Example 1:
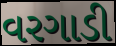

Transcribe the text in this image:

વરગાડી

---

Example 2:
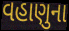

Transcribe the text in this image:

વહાણુના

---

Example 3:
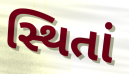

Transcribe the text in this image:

સ્થિતાં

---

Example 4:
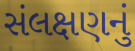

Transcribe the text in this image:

સંલક્ષણનું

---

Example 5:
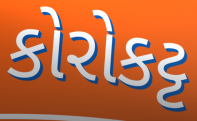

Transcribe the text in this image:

કોરોકટ્ટ